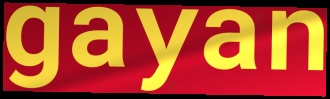
gayan